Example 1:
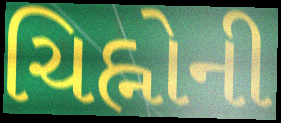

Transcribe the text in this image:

ચિહ્નોની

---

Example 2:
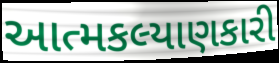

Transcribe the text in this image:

આત્મકલ્યાણકારી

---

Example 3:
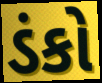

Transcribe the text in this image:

ડંકો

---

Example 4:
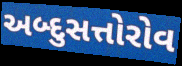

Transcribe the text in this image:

અબ્દુસત્તોરોવ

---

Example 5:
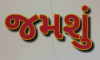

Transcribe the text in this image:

જમશું